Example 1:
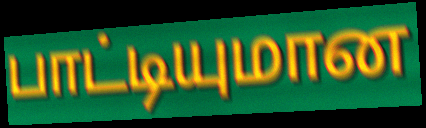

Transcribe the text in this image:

பாட்டியுமான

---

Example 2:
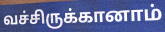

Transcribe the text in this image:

வச்சிருக்கானாம்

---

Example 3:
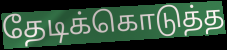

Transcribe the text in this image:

தேடிக்கொடுத்த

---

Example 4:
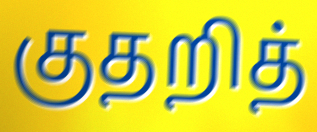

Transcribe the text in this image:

குதறித்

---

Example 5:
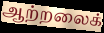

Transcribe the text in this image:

ஆற்றலைக்